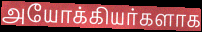
அயோக்கியர்களாக